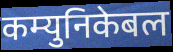
कम्युनिकेबल